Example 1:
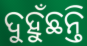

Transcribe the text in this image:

ଦୁହୁଁଛନ୍ତି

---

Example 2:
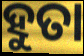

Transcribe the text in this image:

ହୁତା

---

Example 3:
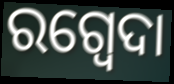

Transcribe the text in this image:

ରଗ୍ବେଦା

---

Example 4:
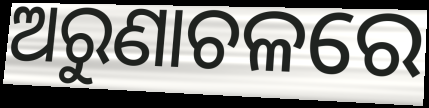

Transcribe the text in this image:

ଅରୁଣାଚଳରେ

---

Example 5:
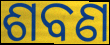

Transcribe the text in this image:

ଶବଣ